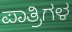
ಪಾತ್ರಿಗಳ